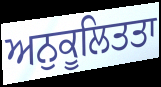
ਅਨੁਕੂਲਿਤਤਾ